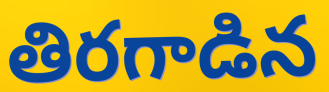
తిరగాడిన